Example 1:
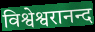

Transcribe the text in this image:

विश्वेश्वरानन्द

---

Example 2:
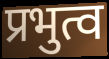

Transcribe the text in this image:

प्रभुत्व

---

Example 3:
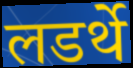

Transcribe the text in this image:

लडर्थे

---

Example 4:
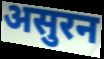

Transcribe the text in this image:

असुरन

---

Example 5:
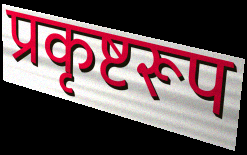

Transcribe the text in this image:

प्रकृष्टरूप